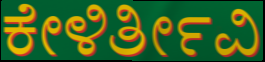
ಕೇಳಿರ್ತೀವಿ